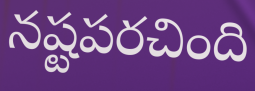
నష్టపరచింది